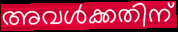
അവൾക്കതിന്